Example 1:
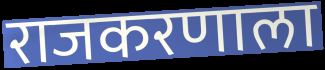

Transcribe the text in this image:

राजकरणाला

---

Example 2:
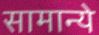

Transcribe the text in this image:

सामान्ये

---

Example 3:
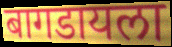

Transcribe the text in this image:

बागडायला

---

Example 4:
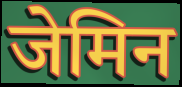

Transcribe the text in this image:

जेमिन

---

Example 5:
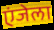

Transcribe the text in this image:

एंजेला